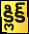
క్లిక్